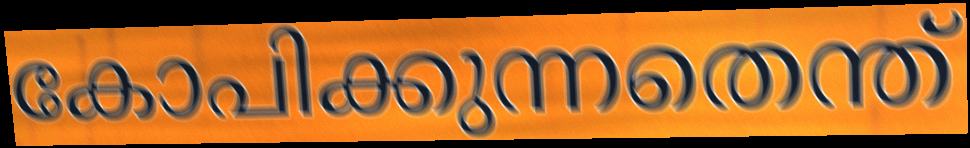
കോപിക്കുന്നതെന്ത്